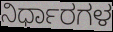
ನಿರ್ಧಾರಗಳ